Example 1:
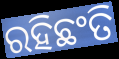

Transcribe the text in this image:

ରହିଛଂତି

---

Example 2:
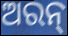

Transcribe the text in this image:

ଅରନ୍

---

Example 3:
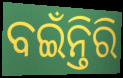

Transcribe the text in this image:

ବଇଁନ୍ତିରି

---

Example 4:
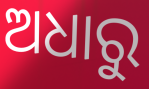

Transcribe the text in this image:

ଅଧାରୁ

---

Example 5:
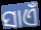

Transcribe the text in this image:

ସାଏଁ